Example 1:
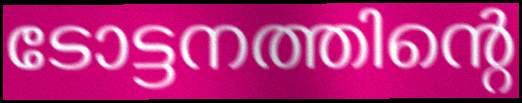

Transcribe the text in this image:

ടോട്ടനത്തിന്റെ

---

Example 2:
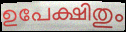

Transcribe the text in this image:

ഉപേക്ഷിതും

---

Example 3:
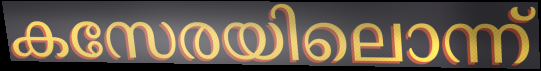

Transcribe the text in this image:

കസേരയിലൊന്ന്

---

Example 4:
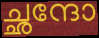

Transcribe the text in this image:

ച്ഛന്ദോ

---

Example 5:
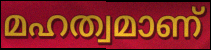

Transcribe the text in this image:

മഹത്വമാണ്